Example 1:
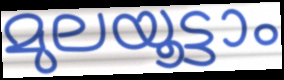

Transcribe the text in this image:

മുലയൂട്ടാം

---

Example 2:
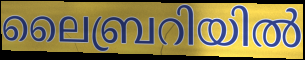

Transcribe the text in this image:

ലൈബ്രറിയിൽ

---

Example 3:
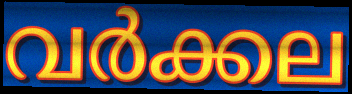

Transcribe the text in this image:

വർക്കല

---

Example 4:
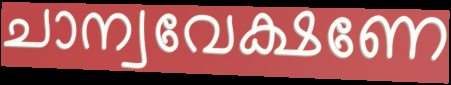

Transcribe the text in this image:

ചാന്വവേക്ഷണേ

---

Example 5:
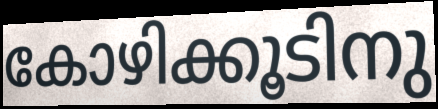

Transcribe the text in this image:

കോഴിക്കൂടിനു